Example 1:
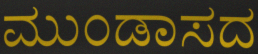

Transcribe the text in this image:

ಮುಂಡಾಸದ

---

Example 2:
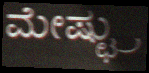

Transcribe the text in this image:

ಮೇಷ್ಟ್ರು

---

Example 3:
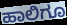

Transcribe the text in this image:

ಹಾಲಿಗೂ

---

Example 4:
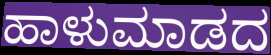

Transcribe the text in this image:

ಹಾಳುಮಾಡದ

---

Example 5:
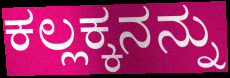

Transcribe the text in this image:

ಕಲ್ಲಕ್ಕನನ್ನು